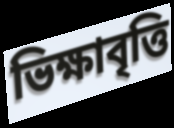
ভিক্ষাবৃত্তি